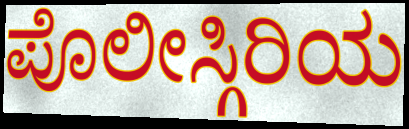
ಪೊಲೀಸ್ಗಿರಿಯ